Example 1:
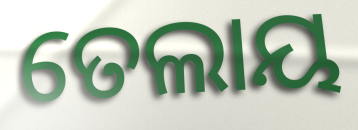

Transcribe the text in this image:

ତେଲାୟ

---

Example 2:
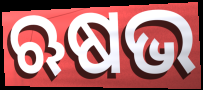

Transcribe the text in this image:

ଋଷଭ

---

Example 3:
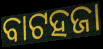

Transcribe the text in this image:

ବାଟହଜା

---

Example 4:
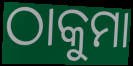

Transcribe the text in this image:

ଠାକୁମା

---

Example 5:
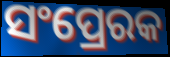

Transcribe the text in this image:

ସଂପ୍ରେରକ